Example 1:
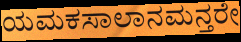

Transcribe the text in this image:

ಯಮಕಸಾಲಾನಮನ್ತರೇ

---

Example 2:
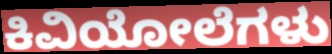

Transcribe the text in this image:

ಕಿವಿಯೋಲೆಗಳು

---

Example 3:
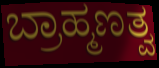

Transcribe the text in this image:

ಬ್ರಾಹ್ಮಣತ್ವ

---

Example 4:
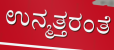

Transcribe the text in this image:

ಉನ್ಮತ್ತರಂತೆ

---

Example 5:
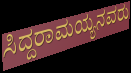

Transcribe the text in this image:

ಸಿದ್ದರಾಮಯ್ಯನವರು